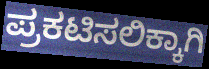
ಪ್ರಕಟಿಸಲಿಕ್ಕಾಗಿ